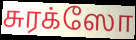
சுரக்ஸோ